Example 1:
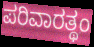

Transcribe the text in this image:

ಪರಿವಾರತ್ಥಂ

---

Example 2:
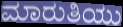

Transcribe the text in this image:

ಮಾರುತಿಯು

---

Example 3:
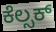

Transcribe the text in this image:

ಕೆಲ್ಸಕ್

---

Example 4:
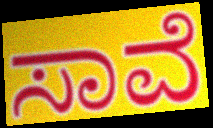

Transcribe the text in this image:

ಸಾವೆ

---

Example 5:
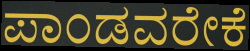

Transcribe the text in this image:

ಪಾಂಡವರೇಕೆ